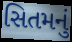
સિતમનું